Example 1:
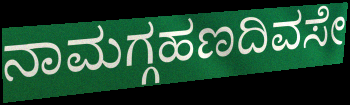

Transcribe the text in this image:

ನಾಮಗ್ಗಹಣದಿವಸೇ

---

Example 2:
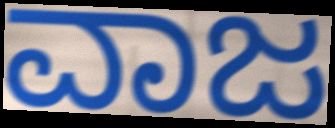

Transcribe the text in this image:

ವಾಜ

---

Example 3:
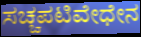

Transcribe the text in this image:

ಸಚ್ಚಪಟಿವೇಧೇನ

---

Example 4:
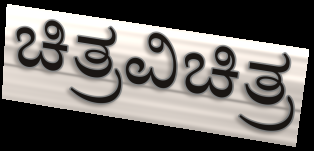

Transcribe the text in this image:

ಚಿತ್ರವಿಚಿತ್ರ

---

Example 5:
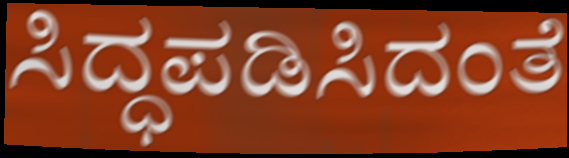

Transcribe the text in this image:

ಸಿದ್ಧಪಡಿಸಿದಂತೆ